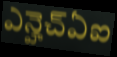
ఎన్హెచ్ఏఐ